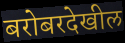
बरोबरदेखील